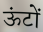
ऊंटों